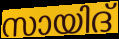
സായിദ്